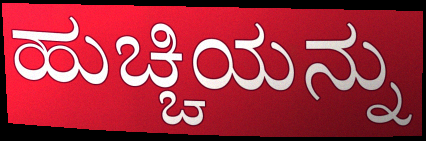
ಹುಚ್ಚಿಯನ್ನು